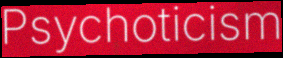
Psychoticism